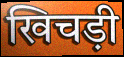
खिचड़ी